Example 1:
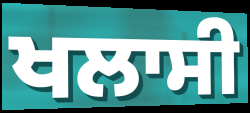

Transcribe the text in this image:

ਖਲਾਸੀ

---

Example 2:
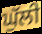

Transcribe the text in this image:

ਘੁੱਲੀ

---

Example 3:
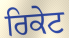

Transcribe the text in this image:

ਰਿਕੇਟ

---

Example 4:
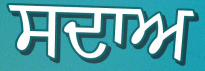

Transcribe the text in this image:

ਸਦਾਅ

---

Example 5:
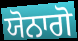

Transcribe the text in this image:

ਯੋਨਾਗੋ